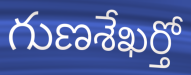
గుణశేఖర్తో